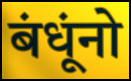
बंधूंनो